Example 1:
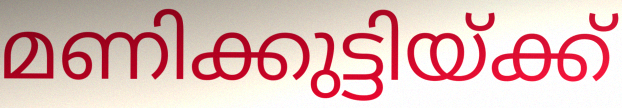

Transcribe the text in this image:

മണിക്കുട്ടിയ്ക്ക്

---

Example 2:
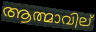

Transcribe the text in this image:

ആത്മാവില്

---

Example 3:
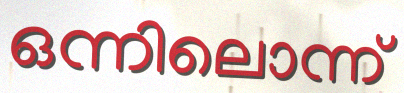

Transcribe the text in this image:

ഒന്നിലൊന്ന്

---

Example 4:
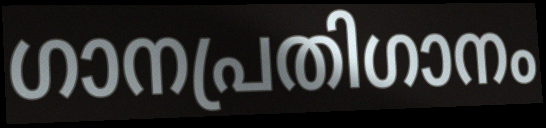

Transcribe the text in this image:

ഗാനപ്രതിഗാനം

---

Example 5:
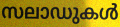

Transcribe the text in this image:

സലാഡുകൾ